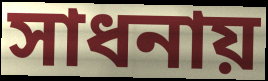
সাধনায়